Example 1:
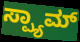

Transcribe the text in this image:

ಸ್ಪ್ಯಾಮ್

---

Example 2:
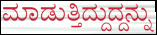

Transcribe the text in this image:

ಮಾಡುತ್ತಿದ್ದುದ್ದನ್ನು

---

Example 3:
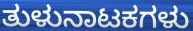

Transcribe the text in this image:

ತುಳುನಾಟಕಗಳು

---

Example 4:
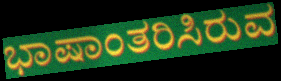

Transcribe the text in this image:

ಭಾಷಾಂತರಿಸಿರುವ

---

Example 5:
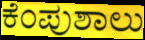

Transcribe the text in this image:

ಕೆಂಪುಶಾಲು